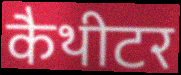
कैथीटर